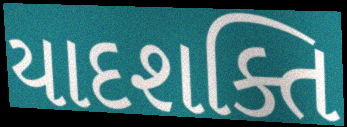
યાદશક્તિ